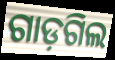
ଗାଡ଼ଗିଲ